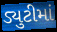
ડ્યુટીમાં